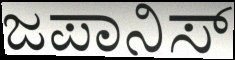
ಜಪಾನಿಸ್